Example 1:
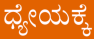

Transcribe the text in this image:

ಧ್ಯೇಯಕ್ಕೆ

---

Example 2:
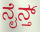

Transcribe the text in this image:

ನೈನ್ತ್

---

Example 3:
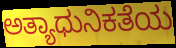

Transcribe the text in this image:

ಅತ್ಯಾಧುನಿಕತೆಯ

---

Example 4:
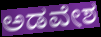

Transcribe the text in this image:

ಅಡವೇಶ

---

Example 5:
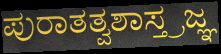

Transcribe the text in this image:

ಪುರಾತತ್ವಶಾಸ್ತ್ರಜ್ಞ